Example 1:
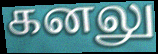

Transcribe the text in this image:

கனலு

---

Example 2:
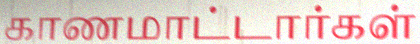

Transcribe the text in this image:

காணமாட்டார்கள்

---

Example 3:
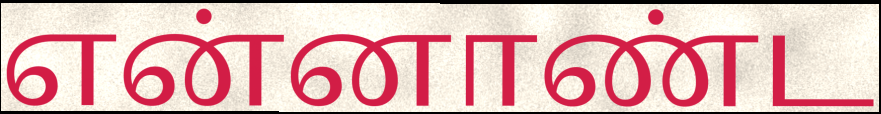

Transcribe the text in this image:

என்னாண்ட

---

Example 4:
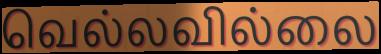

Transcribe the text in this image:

வெல்லவில்லை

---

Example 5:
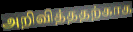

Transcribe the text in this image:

அறிவித்ததற்காக